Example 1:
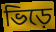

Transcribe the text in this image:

ভিড়ে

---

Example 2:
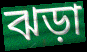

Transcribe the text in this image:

ঝড়া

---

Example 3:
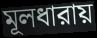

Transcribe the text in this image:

মূলধারায়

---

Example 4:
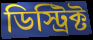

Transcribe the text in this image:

ডিস্ট্রিক্ট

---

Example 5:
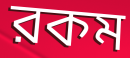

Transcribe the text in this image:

রকম